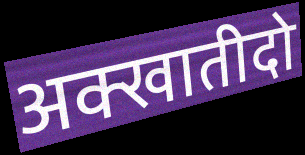
अक्खातीदो